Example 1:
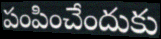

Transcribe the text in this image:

పంపించేందుకు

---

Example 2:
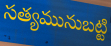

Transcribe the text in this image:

సత్యమునుబట్టి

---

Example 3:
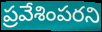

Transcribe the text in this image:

ప్రవేశింపరని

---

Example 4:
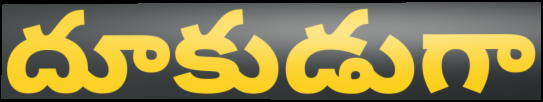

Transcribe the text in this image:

దూకుడుగా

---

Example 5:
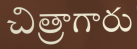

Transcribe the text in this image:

చిత్రాగారు